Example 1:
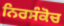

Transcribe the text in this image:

ਨਿਰਸੰਕੋਚ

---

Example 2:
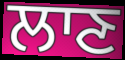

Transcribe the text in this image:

ਲਾਣ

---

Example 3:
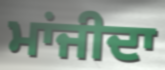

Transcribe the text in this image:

ਮਾਂਜੀਦਾ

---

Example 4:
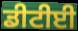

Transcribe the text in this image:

ਡੀਟੀਈ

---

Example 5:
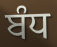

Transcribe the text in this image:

ਬੰਧ